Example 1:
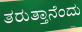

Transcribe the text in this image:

ತರುತ್ತಾನೆಂದು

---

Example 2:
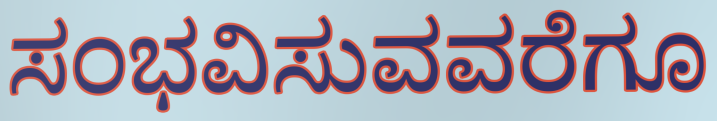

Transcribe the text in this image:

ಸಂಭವಿಸುವವರೆಗೂ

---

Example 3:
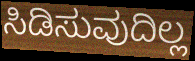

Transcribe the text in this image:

ಸಿಡಿಸುವುದಿಲ್ಲ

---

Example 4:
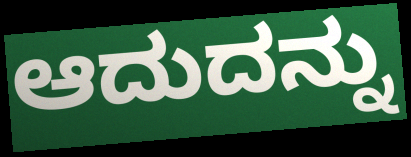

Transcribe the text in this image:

ಆದುದನ್ನು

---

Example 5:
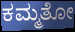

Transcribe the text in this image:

ಕಮ್ಮತೋ